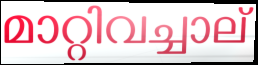
മാറ്റിവച്ചാല്